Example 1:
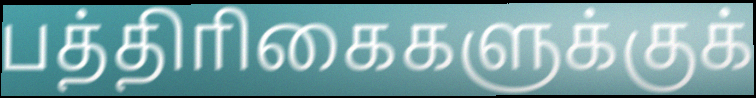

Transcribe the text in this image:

பத்திரிகைகளுக்குக்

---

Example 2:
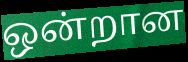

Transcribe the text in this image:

ஒன்றான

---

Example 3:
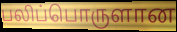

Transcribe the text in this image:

பலிப்பொருளான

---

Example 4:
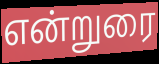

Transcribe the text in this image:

என்றுரை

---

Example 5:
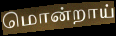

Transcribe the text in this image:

மொன்றாய்